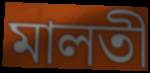
মালতী